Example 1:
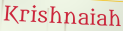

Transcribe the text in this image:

Krishnaiah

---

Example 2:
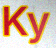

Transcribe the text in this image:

Ky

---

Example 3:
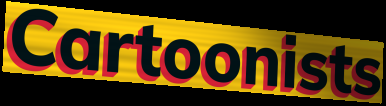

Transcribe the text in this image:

Cartoonists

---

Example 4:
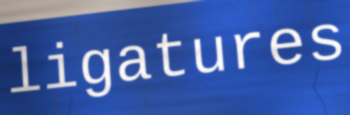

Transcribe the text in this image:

ligatures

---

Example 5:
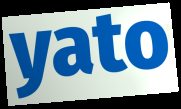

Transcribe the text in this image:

yato